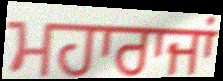
ਮਹਾਰਾਜਾਂ